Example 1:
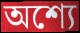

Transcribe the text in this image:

অশ্যে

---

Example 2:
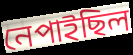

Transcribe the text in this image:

নেপাইছিল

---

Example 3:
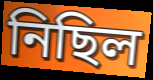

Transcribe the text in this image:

নিছিল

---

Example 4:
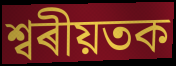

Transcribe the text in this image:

শ্বৰীয়তক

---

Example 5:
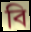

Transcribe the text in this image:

বি